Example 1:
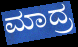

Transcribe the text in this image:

ಮಾದ್ರ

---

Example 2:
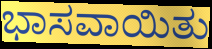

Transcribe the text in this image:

ಭಾಸವಾಯಿತು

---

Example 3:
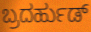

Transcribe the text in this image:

ಬ್ರದರ್ಹುಡ್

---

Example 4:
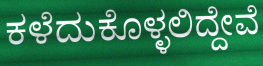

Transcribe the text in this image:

ಕಳೆದುಕೊಳ್ಳಲಿದ್ದೇವೆ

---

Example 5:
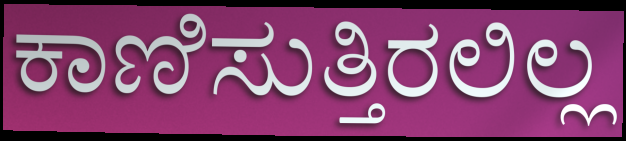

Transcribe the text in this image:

ಕಾಣಿಸುತ್ತಿರಲಿಲ್ಲ